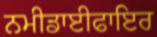
ਨਮੀਡਾਈਫਾਇਰ